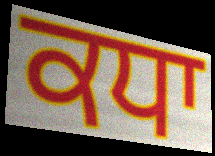
ਕਧਾ